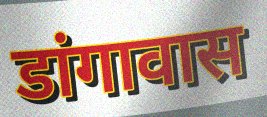
डांगावास